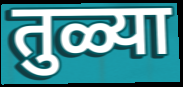
तुळ्या